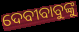
ଦେବୀବାବୁଙ୍କୁ